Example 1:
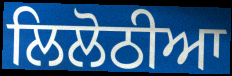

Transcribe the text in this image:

ਲਿਲੋਠੀਆ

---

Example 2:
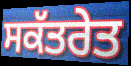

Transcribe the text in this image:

ਸਕੱਤਰੇਤ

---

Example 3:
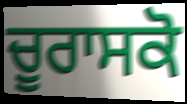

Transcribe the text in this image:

ਚੂਰਾਸਕੋ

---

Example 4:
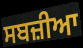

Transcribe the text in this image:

ਸਬਜ਼ੀਆ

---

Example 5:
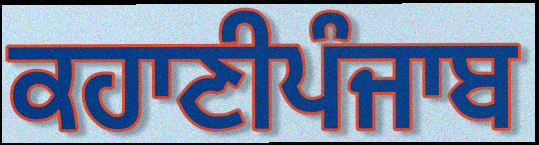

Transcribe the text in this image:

ਕਹਾਣੀਪੰਜਾਬ